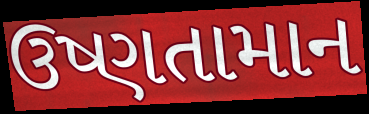
ઉષ્ણતામાન